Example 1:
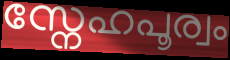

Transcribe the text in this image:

സ്നേഹപൂര്വം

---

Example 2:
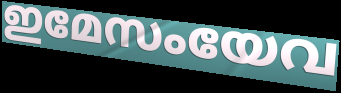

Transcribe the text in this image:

ഇമേസംയേവ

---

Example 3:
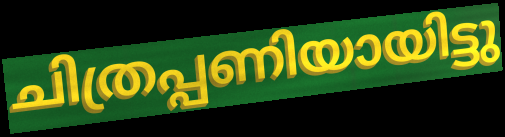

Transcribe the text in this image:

ചിത്രപ്പണിയായിട്ടു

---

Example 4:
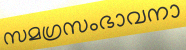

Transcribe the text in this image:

സമഗ്രസംഭാവനാ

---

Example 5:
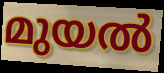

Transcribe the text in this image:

മുയൽ